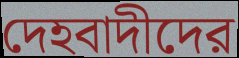
দেহবাদীদের